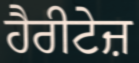
ਹੈਰੀਟੇਜ਼